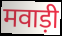
मवाड़ी